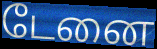
டேனை